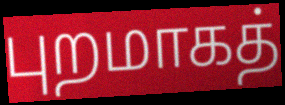
புறமாகத்